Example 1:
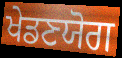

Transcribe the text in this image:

ਖੇਡਣਯੋਗ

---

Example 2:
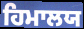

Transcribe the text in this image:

ਹਿਮਾਲਯ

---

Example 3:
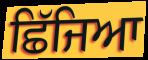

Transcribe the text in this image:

ਛਿੱਜਿਆ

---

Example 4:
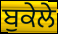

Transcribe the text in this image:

ਬੁਕੇਲੇ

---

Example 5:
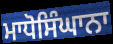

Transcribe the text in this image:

ਮਾਧੋਸਿੰਘਾਨਾ